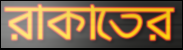
রাকাতের